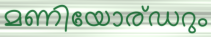
മണിയോര്ഡറും